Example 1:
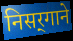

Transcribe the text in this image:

निसर्गाने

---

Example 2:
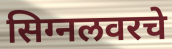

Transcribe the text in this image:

सिग्नलवरचे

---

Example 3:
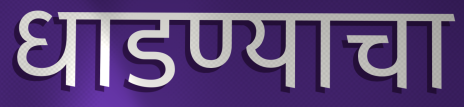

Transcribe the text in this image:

धाडण्याचा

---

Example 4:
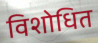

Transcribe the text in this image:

विशोधित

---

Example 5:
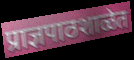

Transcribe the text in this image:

प्राज्ञपाठशाळेत